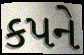
કપને